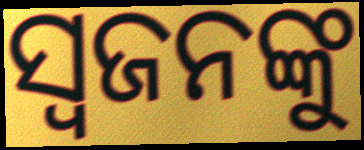
ସ୍ଵଜନଙ୍କୁ